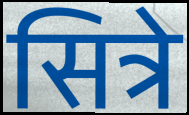
सित्रे